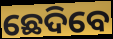
ଛେଦିବେ